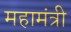
महामंत्री